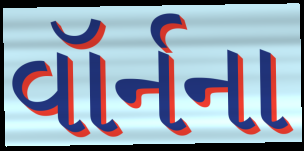
વૉર્નના